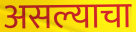
असल्‍याचा